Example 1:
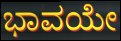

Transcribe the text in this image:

ಭಾವಯೇ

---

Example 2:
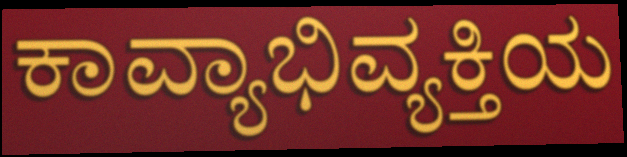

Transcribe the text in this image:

ಕಾವ್ಯಾಭಿವ್ಯಕ್ತಿಯ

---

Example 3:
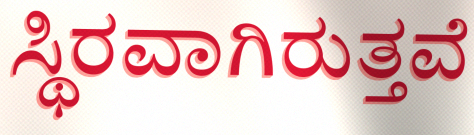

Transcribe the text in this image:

ಸ್ಥಿರವಾಗಿರುತ್ತವೆ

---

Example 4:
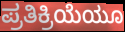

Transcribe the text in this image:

ಪ್ರತಿಕ್ರಿಯೆಯೂ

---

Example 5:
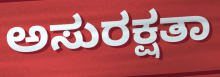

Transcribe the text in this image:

ಅಸುರಕ್ಷತಾ